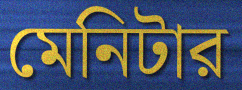
মেনিটার